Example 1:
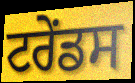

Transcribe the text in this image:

ਟਰੇਂਡਸ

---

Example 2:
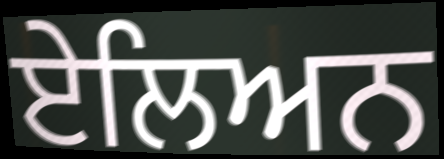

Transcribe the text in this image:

ਏਲਿਅਨ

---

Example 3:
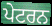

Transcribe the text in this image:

ਪੇਟਰਨ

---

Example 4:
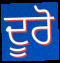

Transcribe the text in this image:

ਦੂਰੋ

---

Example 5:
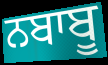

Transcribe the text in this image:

ਨਬਾਬੂ